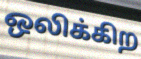
ஒலிக்கிற